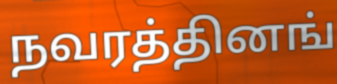
நவரத்தினங்